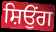
ਸ਼ਿਉਂਗ